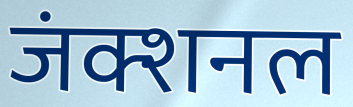
जंक्शनल